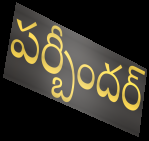
పర్బీందర్